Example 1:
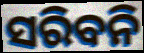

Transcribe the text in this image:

ସରିବନି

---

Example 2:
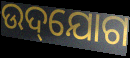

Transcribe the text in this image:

ଉଦ୍‌ଯୋଗ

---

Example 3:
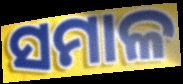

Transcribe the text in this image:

ସମାଳ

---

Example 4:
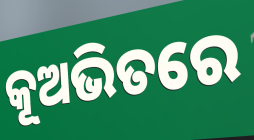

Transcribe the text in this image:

କୂଅଭିତରେ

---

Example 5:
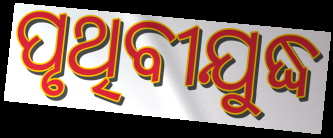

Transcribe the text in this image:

ପୃଥିବୀଯୁଦ୍ଧ